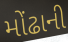
મોંઢાની